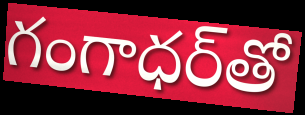
గంగాధర్‌తో